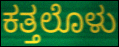
ಕತ್ತಲೊಳು